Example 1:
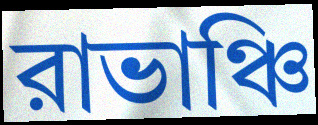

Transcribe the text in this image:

রাভাঞ্চি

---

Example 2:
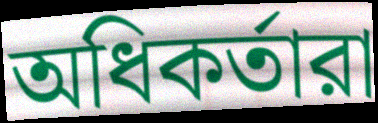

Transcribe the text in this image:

অধিকর্তারা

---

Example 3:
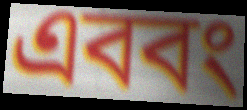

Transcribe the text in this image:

এববং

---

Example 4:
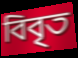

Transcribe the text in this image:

বিবৃত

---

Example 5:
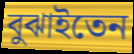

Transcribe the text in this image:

বুঝাইতেন